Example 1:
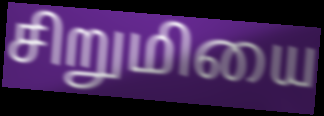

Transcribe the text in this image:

சிறுமியை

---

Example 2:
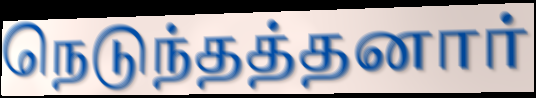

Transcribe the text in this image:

நெடுந்தத்தனார்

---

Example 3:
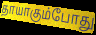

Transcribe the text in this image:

தாயாகும்போது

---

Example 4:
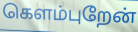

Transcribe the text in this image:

கெளம்புறேன்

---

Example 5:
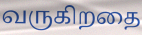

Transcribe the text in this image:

வருகிறதை